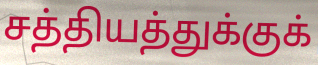
சத்தியத்துக்குக்